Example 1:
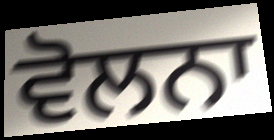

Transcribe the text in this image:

ਵੋਲਨਾ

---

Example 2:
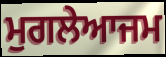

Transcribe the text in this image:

ਮੁਗਲੇਆਜਮ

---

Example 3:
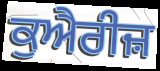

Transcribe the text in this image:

ਕੁਐਰੀਜ਼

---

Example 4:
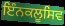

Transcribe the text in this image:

ਇੰਨਕਲੂਸਿਵ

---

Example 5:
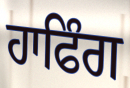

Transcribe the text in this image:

ਹਾਫਿੰਗ